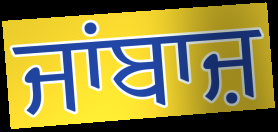
ਜਾਂਬਾਜ਼